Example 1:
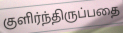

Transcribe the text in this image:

குளிர்ந்திருப்பதை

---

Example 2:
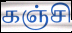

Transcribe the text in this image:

கஞ்சி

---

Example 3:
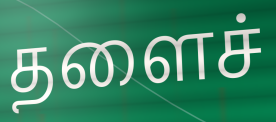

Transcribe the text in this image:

தளைச்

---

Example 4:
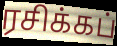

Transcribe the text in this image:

ரசிக்கப்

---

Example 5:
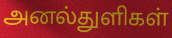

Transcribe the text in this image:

அனல்துளிகள்